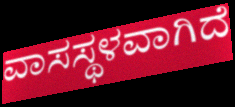
ವಾಸಸ್ಥಳವಾಗಿದೆ